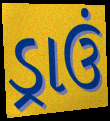
ડ્રાઉં